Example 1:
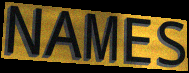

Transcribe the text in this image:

NAMES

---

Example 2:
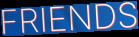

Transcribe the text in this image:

FRIENDS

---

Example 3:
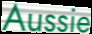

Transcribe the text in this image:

Aussie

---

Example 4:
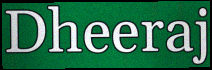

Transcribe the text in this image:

Dheeraj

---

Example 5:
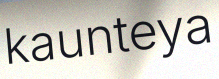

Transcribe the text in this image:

kaunteya